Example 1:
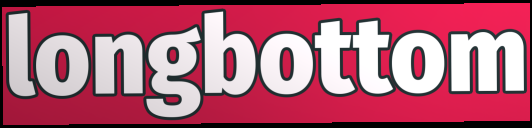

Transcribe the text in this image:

longbottom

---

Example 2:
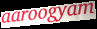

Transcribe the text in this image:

aaroogyam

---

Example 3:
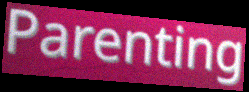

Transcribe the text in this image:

Parenting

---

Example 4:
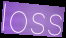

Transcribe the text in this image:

loss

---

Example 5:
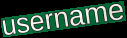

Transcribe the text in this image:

username